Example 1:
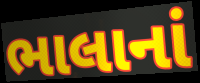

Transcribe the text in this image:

ભાલાનાં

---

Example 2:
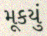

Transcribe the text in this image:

મૂકયું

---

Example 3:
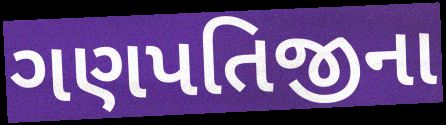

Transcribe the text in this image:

ગણપતિજીના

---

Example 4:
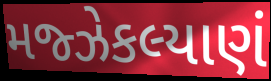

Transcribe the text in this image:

મજ્ઝેકલ્યાણં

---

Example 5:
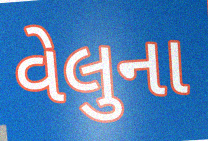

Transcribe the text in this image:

વેલુના